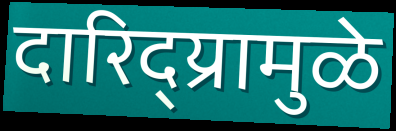
दारिद्य्रामुळे